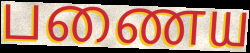
பணைய